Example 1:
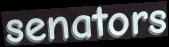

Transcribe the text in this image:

senators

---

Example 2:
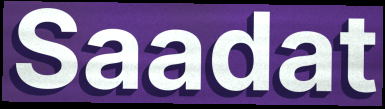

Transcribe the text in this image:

Saadat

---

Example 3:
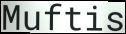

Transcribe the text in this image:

Muftis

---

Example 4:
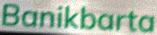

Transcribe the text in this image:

Banikbarta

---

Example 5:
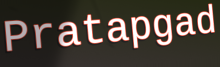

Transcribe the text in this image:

Pratapgad